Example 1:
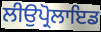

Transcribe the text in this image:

ਲੀਉਪ੍ਰੋਲਾਇਡ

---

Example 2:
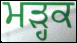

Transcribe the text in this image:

ਮੜ੍ਹਕ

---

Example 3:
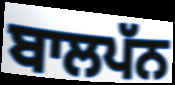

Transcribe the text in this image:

ਬਾਲਪੱਨ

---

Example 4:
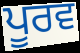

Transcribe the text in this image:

ਪੂਰਵ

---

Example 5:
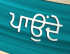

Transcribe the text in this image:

ਪਾਉਂਦੇ